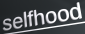
selfhood